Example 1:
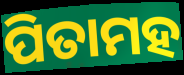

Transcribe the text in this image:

ପିତାମହ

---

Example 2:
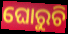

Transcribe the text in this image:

ଘୋରୁଚି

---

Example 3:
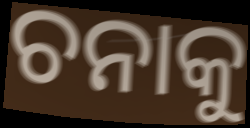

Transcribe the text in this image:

ଚନାକୁ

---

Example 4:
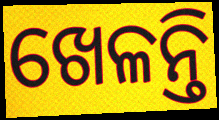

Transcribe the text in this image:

ଖେଳନ୍ତି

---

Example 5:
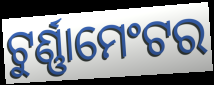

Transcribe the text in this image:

ଟୁର୍ଣ୍ଣାମେଂଟର